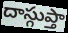
దాస్గుప్తా